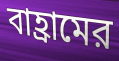
বাহ্রামের